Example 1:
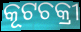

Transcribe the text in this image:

କୂଟଚକ୍ରୀ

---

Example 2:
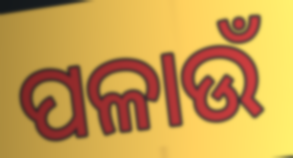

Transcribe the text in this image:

ପଳାଉଁ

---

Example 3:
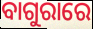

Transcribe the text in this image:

ବାଗୁରାରେ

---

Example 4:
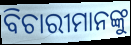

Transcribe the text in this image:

ବିଚାରୀମାନଙ୍କୁ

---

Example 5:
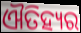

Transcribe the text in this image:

ଐତିହ୍ୟର